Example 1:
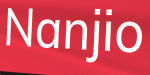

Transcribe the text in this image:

Nanjio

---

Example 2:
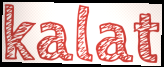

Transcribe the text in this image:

kalat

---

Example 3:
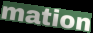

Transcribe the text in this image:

mation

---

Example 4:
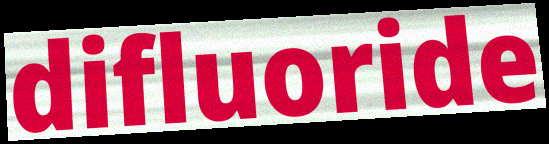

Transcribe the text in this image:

difluoride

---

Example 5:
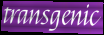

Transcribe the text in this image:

transgenic